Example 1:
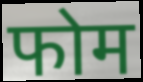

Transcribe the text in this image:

फोम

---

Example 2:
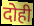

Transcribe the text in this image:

दोही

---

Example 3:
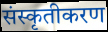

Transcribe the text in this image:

संस्कृतीकरण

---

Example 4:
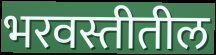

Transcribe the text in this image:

भरवस्तीतील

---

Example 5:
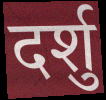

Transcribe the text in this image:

दर्शु